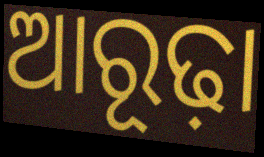
ଆରୂଢ଼ା